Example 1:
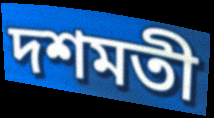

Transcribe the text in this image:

দশমতী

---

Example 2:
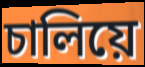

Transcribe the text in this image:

চালিয়ে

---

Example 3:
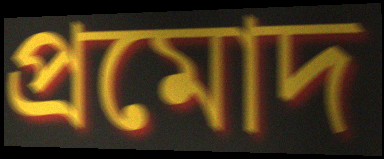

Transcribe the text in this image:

প্ৰমোদ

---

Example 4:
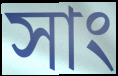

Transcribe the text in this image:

সাং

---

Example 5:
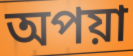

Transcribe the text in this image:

অপয়া